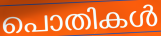
പൊതികൾ